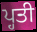
ਪ੍ਹਤੀ